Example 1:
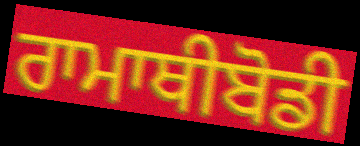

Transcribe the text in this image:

ਰਾਮਾਥੀਬੋਡੀ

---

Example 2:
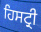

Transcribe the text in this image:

ਹਿਸਟ੍ਰੀ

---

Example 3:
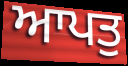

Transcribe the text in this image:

ਆਪਤੁ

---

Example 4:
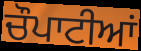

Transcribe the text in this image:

ਚੌਪਾਟੀਆਂ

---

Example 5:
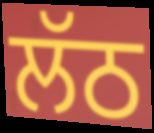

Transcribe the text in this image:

ਲੱਠ